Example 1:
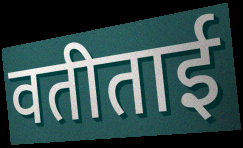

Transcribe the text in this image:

वतीताई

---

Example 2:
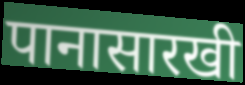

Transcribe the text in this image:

पानासारखी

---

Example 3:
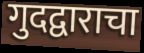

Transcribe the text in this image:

गुदद्वाराचा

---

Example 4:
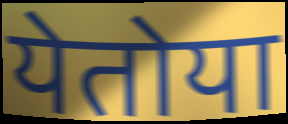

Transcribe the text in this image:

येतोया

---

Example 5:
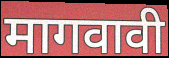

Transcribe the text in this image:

मागवावी